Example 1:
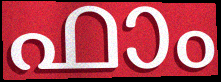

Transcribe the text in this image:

ഫാം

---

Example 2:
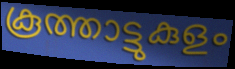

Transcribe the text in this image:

കൂത്താട്ടുകുളം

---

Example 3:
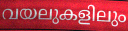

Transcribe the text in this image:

വയലുകളിലും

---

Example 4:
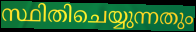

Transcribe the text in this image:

സ്ഥിതിചെയ്യുന്നതും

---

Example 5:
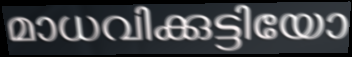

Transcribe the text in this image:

മാധവിക്കുട്ടിയോ